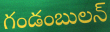
గండంబులన్